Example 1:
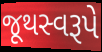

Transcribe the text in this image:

જૂથસ્વરૂપે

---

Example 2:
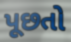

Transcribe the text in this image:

પૂછતો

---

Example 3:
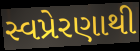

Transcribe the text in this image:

સ્વપ્રેરણાથી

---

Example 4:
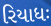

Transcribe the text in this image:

રિયાધઃ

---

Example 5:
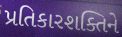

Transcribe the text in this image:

પ્રતિકારશક્તિને